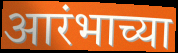
आरंभाच्या